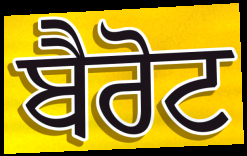
ਬੈਰੋਟ